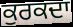
ਕੁਰਕਦਾ